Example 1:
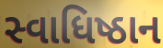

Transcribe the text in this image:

સ્વાધિષ્ઠાન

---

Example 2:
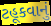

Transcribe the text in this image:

ટહૂકવાનું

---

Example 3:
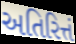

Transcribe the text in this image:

અતિરિત્તં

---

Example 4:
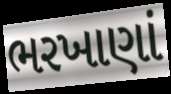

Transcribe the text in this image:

ભરખાણાં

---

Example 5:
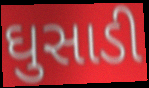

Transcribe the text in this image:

ઘુસાડી